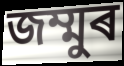
জম্মুৰ